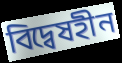
বিদ্বেষহীন